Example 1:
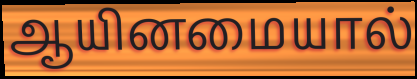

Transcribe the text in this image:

ஆயினமையால்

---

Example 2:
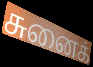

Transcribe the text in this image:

சுனைக்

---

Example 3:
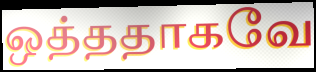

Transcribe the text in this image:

ஒத்ததாகவே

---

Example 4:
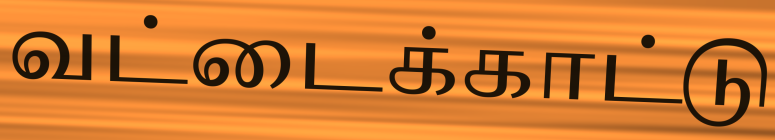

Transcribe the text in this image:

வட்டைக்காட்டு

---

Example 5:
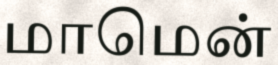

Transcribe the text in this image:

மாமென்